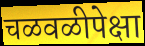
चळवळीपेक्षा